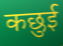
कछुई